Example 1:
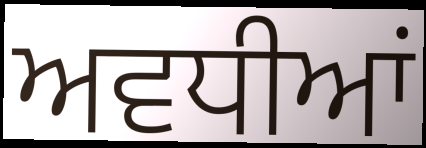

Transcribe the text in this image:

ਅਵਧੀਆਂ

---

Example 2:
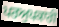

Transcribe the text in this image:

ਪਰਅੁਪਕਾਰੀ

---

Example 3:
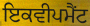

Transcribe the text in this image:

ਇਕਵੀਪਮੈਂਟ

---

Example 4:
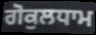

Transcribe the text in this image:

ਗੋਕੁਲਧਾਮ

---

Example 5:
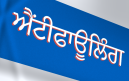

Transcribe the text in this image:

ਐਂਟੀਫਾਊਲਿੰਗ